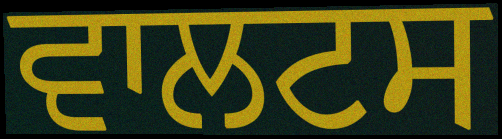
ਵਾਲਟਸ